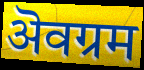
ऄवग्रम